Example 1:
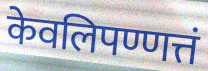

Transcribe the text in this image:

केवलिपण्णत्तं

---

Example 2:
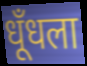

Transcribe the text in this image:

धूँधला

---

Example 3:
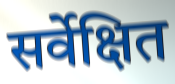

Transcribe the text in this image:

सर्वेक्षित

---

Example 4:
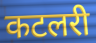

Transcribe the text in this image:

कटलरी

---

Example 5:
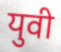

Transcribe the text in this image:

युवी